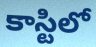
కాస్టిలో